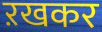
ऱखकर